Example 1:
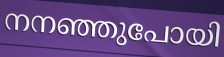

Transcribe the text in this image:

നനഞ്ഞുപോയി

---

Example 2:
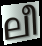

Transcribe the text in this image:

ലീ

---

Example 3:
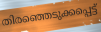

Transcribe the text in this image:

തിരഞ്ഞെടുക്കപ്പെട്ട്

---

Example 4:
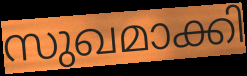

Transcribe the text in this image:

സുഖമാക്കി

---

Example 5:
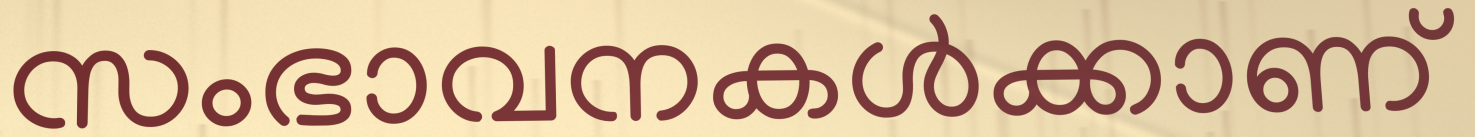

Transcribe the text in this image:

സംഭാവനകൾക്കാണ്